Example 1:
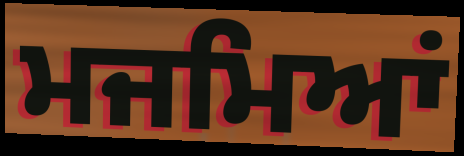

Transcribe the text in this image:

ਮਜਮਿਆਂ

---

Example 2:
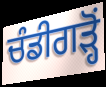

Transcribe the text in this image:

ਚੰਡੀਗੜ੍ਹੋਂ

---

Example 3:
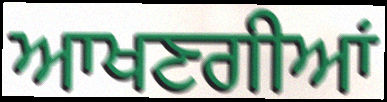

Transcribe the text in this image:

ਆਖਣਗੀਆਂ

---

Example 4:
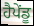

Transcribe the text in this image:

ਹੈਪੇਂਡੂ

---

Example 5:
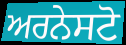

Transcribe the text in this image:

ਅਰਨੇਸਟੋ